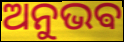
ଅନୁଭଵ